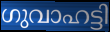
ഗുവാഹട്ടി